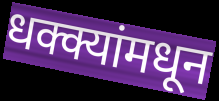
धक्क्यांमधून